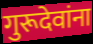
गुरूदेवांना